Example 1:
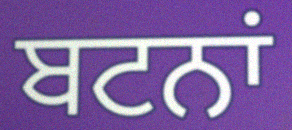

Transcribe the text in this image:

ਬਟਨਾਂ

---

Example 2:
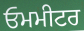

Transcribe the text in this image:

ਓਮਮੀਟਰ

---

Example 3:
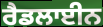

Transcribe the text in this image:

ਰੈਡਲਾਈਨ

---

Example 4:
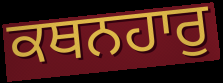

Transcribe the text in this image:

ਕਥਨਹਾਰੁ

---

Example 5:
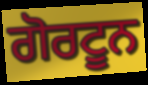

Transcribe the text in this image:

ਗੋਰਟੂਨ